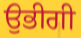
ਉਭੀਗੀ